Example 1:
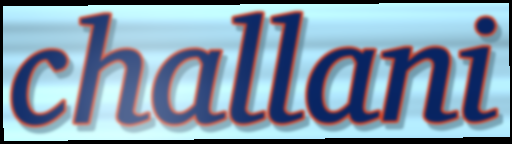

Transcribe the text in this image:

challani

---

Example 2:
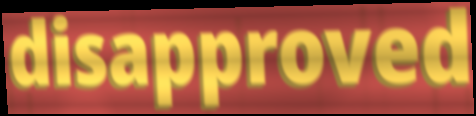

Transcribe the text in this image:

disapproved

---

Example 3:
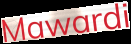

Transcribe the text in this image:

Mawardi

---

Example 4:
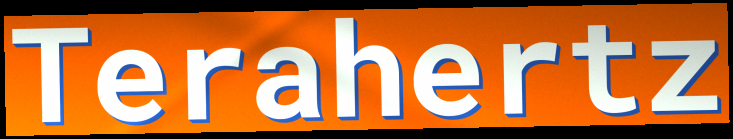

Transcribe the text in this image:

Terahertz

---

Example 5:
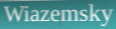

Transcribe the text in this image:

Wiazemsky